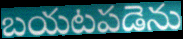
బయటపడెను